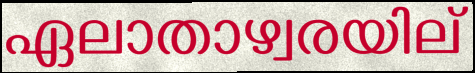
ഏലാതാഴ്വരയില്